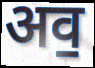
अव॒